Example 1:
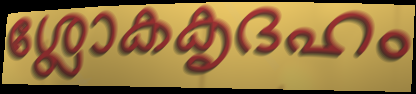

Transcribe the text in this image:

ശ്ലോകകൃദഹം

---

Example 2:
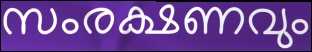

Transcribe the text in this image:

സംരക്ഷണവും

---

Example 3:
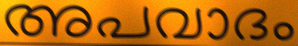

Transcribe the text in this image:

അപവാദം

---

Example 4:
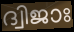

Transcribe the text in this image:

ദ്വിജാഃ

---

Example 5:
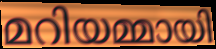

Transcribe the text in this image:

മറിയമ്മായി